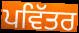
ਪਵਿੱਤਰ